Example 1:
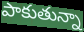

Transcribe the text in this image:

పాకుతున్నా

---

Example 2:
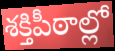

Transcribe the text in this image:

శక్తిపీఠాల్లో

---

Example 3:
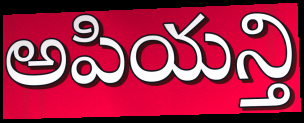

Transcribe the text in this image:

అపియన్తి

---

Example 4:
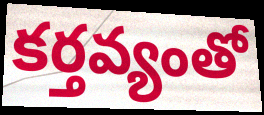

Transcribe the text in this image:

కర్తవ్యంతో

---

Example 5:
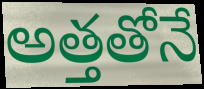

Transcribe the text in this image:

అత్తతోనే